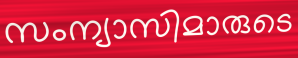
സംന്യാസിമാരുടെ